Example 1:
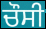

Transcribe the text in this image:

ਚੌਸੀ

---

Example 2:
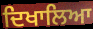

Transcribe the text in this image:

ਦਿਖਾਲਿਆ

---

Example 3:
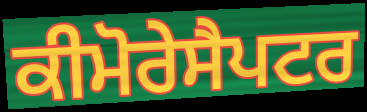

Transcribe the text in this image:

ਕੀਮੋਰੇਸੈਪਟਰ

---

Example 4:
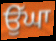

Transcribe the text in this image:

ਉੱਘਾ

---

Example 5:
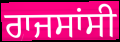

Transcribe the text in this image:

ਰਾਜਸਾਂਸੀ